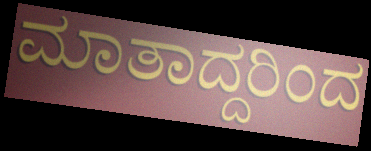
ಮಾತಾದ್ದರಿಂದ